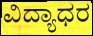
ವಿದ್ಯಾಧರ